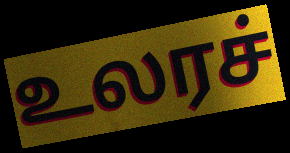
உலரச்